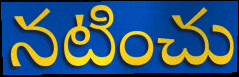
నటించు